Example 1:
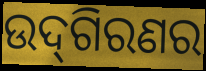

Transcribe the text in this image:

ଉଦ୍‌ଗିରଣର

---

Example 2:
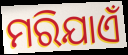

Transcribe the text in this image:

ମରିଯାଏଁ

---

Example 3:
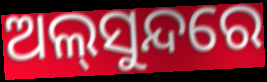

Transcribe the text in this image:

ଅଲ୍‌ସୁନ୍ଦରେ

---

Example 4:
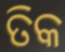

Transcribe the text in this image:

ତିକ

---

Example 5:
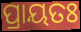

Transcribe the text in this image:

ପ୍ରାୟତଃ